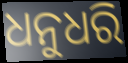
ଧନୁଧରି